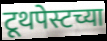
टूथपेस्टच्या